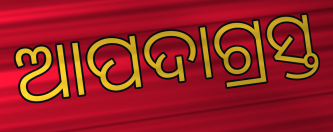
ଆପଦାଗ୍ରସ୍ତ